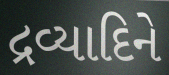
દ્રવ્યાદિને